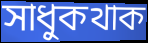
সাধুকথাক